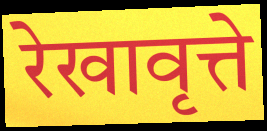
रेखावृत्ते